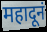
महादूनं